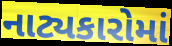
નાટ્યકારોમાં